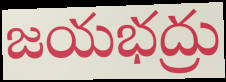
జయభద్రు